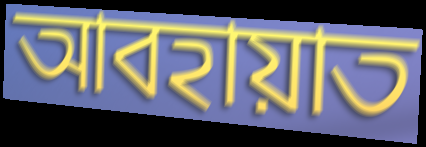
আবহায়াত